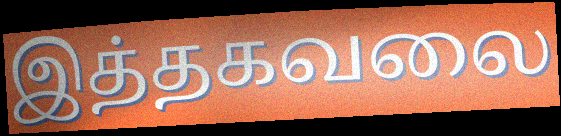
இத்தகவலை